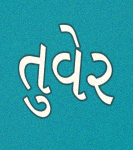
તુવેર